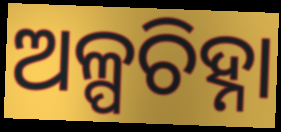
ଅଳ୍ପଚିହ୍ନା